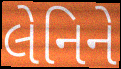
લેનિને